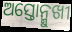
ଅସ୍ତୋନ୍ମୁଖୀ